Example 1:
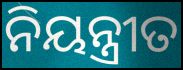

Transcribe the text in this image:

ନିୟନ୍ତ୍ରୀତ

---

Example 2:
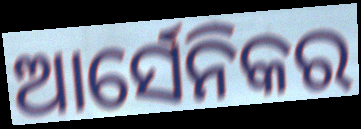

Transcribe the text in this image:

ଆର୍ସେନିକର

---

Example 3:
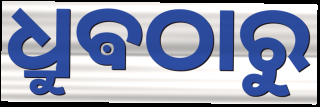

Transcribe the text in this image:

ଧ୍ରୁଵଠାରୁ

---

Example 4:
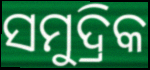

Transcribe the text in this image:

ସମୁଦ୍ରିକ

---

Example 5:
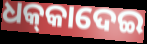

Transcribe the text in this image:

ଧକ୍‌କାଦେଇ